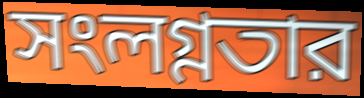
সংলগ্নতার